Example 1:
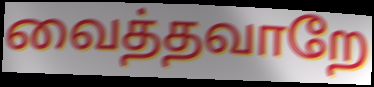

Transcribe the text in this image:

வைத்தவாறே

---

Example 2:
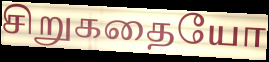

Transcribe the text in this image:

சிறுகதையோ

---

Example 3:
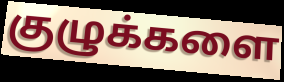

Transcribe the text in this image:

குழுக்களை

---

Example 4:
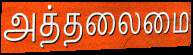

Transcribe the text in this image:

அத்தலைமை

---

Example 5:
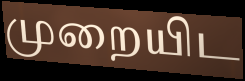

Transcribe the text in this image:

முறையிட